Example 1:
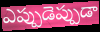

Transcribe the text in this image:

ఎప్పుడెప్పుడా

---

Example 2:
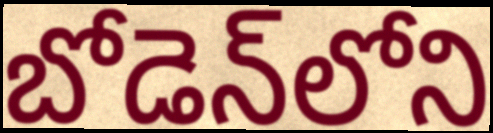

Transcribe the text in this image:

బోడెన్‌లోని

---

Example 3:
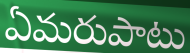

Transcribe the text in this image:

ఏమరుపాటు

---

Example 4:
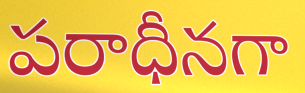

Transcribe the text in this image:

పరాధీనగా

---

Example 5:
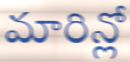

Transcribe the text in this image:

మారిన్లో